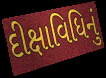
દીક્ષાવિધિનું